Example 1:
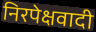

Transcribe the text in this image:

निरपेक्षवादी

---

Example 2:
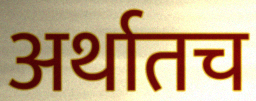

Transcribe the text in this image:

अर्थातच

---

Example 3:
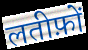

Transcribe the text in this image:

लतीफ़ों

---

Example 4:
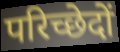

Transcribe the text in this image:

परिच्छेदों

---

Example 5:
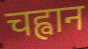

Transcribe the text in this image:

चह्वान